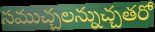
సముచ్చలన్నుచ్చతరో